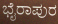
ಭೈರಾಪುರ